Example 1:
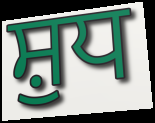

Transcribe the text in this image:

ਸ਼ੁਧ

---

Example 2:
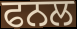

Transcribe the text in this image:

ਫਨਲ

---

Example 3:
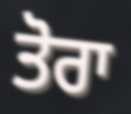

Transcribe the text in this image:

ਤੋਰਾ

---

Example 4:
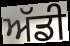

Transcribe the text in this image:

ਅੱਡੀ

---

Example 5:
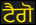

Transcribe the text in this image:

ਟੈਗੋ